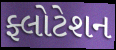
ફ્લોટેશન